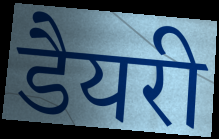
डैयरी